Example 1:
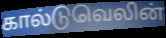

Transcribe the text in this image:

கால்டுவெலின்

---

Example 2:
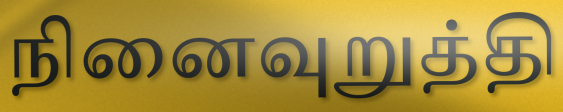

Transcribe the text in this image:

நினைவுறுத்தி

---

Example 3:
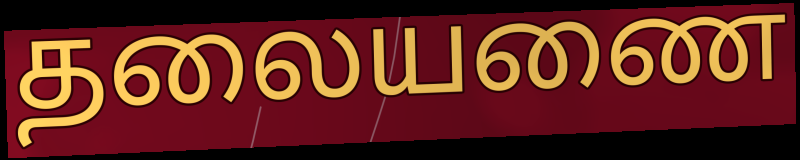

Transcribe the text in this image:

தலையணை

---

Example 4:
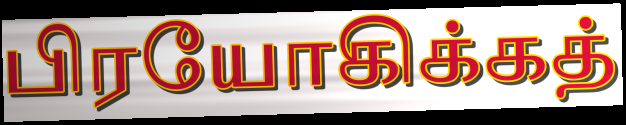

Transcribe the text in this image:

பிரயோகிக்கத்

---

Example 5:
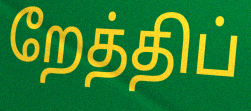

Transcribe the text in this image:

றேத்திப்